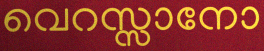
വെറസ്സാനോ